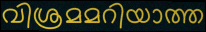
വിശ്രമമറിയാത്ത